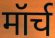
मॉर्च